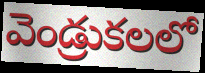
వెండ్రుకలలో